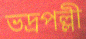
ভদ্রপল্লী